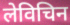
लेविचिन